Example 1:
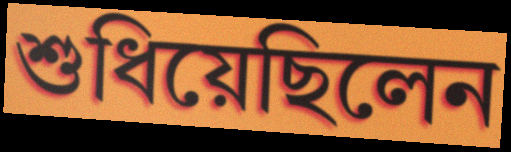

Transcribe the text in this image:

শুধিয়েছিলেন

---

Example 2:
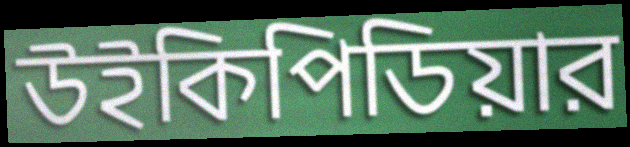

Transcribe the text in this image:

উইকিপিডিয়ার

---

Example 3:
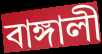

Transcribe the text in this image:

বাঙ্গালী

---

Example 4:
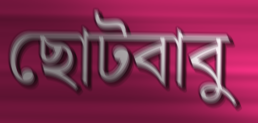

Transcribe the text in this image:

ছোটবাবু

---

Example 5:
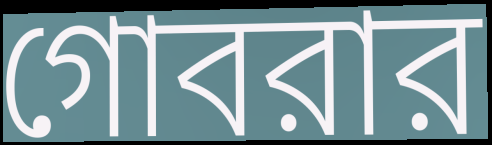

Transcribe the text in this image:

গোবরার